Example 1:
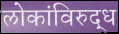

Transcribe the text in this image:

लोकांविरुद्ध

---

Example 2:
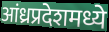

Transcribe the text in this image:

आंध्रप्रदेशमध्ये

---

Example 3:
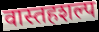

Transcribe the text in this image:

वास्तहशल्प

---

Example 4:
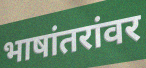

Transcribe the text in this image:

भाषांतरांवर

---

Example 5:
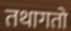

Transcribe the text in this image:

तथागतो